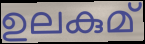
ഉലകുമ്